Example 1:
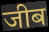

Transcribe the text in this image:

जीब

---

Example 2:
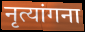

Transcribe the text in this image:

नृत्यांगना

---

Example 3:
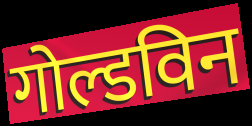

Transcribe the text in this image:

गोल्डविन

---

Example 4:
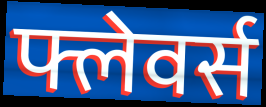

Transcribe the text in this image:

फ्लेवर्स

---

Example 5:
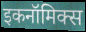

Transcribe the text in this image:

इकनॉमिक्स